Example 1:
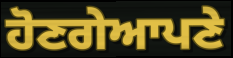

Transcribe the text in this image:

ਹੋਣਗੇਆਪਣੇ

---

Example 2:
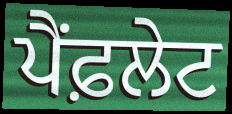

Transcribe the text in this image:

ਪੈਂਫ਼ਲੇਟ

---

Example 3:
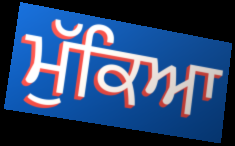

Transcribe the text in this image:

ਮੁੱਕਿਆ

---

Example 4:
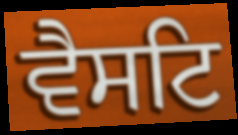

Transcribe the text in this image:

ਵੈਸਟਿ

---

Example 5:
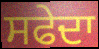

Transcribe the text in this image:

ਸਫੇਦਾ